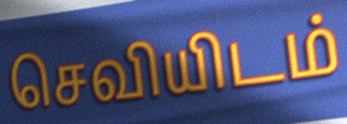
செவியிடம்